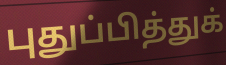
புதுப்பித்துக்